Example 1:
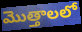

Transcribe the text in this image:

మొత్తాలలో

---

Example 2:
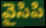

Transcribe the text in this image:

వైసిపి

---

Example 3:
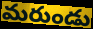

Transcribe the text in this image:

మరుండు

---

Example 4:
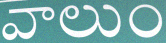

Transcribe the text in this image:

వాలుం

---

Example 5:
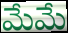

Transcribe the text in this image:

మేమే